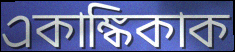
একাঙ্কিকাক